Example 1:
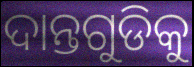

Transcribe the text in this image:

ଦାନ୍ତଗୁଡିକୁ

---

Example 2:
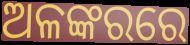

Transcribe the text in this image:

ଅଳଙ୍କରରେ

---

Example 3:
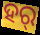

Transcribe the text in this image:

ହର୍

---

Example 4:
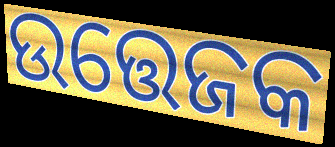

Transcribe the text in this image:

ଉତ୍ତେଜକ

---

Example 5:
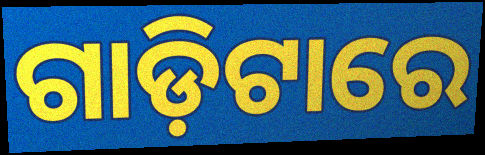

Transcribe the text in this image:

ଗାଡ଼ିଟାରେ